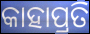
କାହାପ୍ରତି